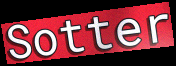
Sotter